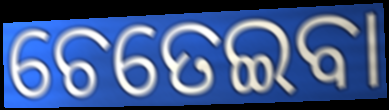
ଚେତେଇବା